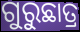
ଗୁରୁଛାତ୍ର